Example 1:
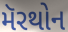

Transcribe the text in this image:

મૅરથોન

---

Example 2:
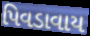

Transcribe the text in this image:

પિવડાવાય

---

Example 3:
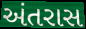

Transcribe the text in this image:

અંતરાસ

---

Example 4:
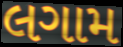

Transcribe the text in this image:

લગામ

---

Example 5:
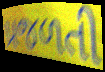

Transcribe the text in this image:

પ્રજળતી